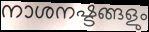
നാശനഷ്ടങ്ങളും